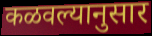
कळवल्यानुसार